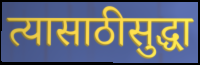
त्यासाठीसुद्धा